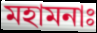
মহামনাঃ